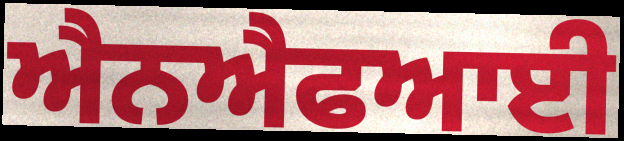
ਐਨਐਫਆਈ